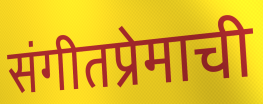
संगीतप्रेमाची